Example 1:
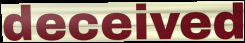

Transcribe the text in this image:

deceived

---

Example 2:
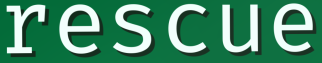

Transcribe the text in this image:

rescue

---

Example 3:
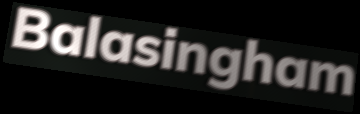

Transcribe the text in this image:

Balasingham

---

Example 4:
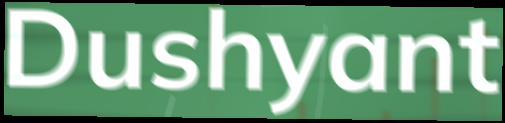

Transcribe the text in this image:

Dushyant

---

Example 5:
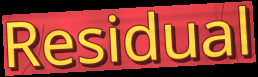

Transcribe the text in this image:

Residual